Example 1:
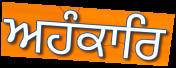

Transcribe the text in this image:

ਅਹੰਕਾਰਿ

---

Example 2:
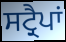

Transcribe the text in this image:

ਸਟ੍ਰੈਪਾਂ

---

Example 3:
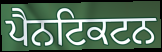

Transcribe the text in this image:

ਪੈਨਟਿਕਟਨ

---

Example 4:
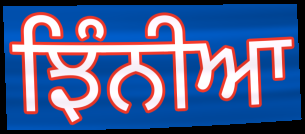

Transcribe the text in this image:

ਝਿੰਨੀਆ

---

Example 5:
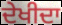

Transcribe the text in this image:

ਦੇਖੀਦਾ